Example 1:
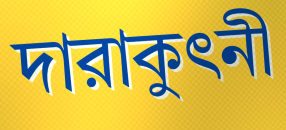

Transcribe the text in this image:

দারাকুৎনী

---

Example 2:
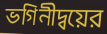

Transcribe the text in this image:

ভগিনীদ্বয়ের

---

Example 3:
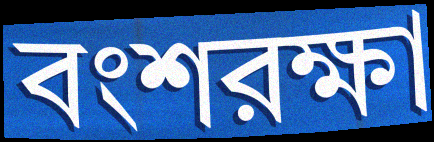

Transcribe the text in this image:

বংশরক্ষা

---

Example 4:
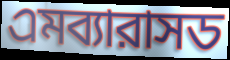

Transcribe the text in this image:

এমব্যারাসড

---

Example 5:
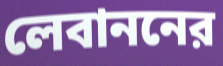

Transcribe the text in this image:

লেবাননের